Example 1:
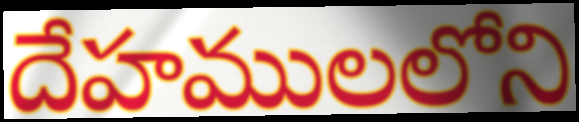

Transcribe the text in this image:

దేహములలోని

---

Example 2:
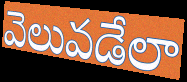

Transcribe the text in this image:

వెలువడేలా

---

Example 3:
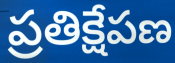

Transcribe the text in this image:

ప్రతిక్షేపణ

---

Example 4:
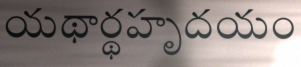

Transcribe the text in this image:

యథార్థహృదయం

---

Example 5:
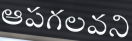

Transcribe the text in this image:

ఆపగలవని